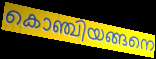
കൊഞ്ചിയങ്ങനെ